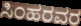
ಸಿಂಹರವರ